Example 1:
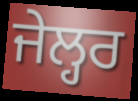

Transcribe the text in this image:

ਜੇਲ੍ਹਰ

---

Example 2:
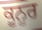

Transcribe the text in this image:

ਕੂਨੂਰ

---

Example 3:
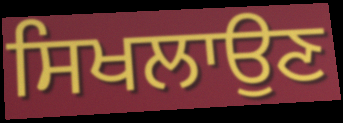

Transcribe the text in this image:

ਸਿਖਲਾਉਣ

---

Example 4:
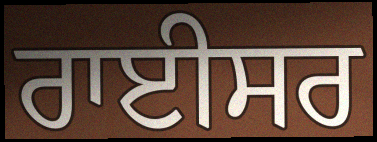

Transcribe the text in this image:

ਰਾਈਸਰ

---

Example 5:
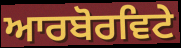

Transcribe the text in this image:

ਆਰਬੋਰਵਿਟੇ